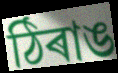
ঠিৰাঙ